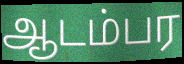
ஆடம்பர